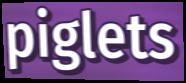
piglets